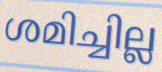
ശമിച്ചില്ല